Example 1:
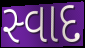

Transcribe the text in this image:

સ્વાદ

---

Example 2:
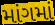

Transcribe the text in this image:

માંગમાં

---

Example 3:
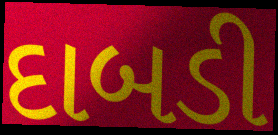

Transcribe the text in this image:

દાબડી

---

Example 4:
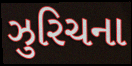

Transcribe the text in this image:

ઝુરિચના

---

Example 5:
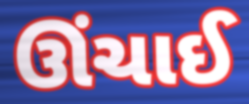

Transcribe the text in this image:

ઊંચાઈ